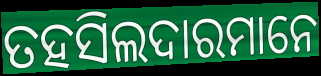
ତହସିଲଦାରମାନେ